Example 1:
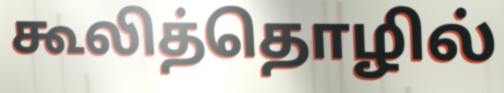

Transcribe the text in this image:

கூலித்தொழில்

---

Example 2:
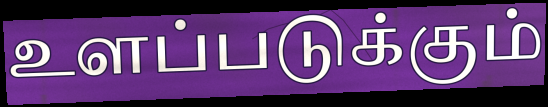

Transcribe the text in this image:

உளப்படுக்கும்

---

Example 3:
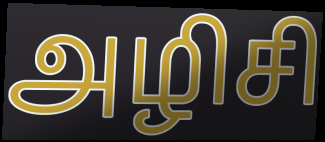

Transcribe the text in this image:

அழிசி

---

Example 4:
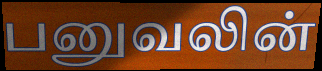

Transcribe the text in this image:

பனுவலின்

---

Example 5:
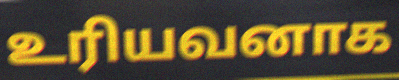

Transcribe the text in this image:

உரியவனாக